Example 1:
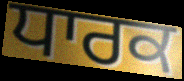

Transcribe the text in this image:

ਧਾਰਕ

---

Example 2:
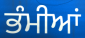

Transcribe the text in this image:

ਭੰਮੀਆਂ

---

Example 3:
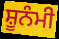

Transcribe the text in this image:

ਸ਼ੂਨੰਮੀ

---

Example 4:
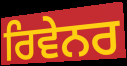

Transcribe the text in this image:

ਰਿਵੇਨਰ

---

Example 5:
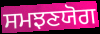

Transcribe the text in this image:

ਸਮਝਣਯੋਗ